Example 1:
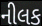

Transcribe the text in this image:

નીલક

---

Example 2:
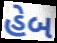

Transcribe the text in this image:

હેબ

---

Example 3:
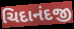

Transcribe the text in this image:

ચિદાનંદજી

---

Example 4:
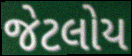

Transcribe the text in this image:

જેટલોય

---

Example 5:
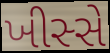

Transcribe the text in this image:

ખીસ્સે